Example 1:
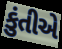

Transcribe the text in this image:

કુંતીએ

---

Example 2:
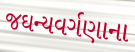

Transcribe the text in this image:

જઘન્યવર્ગણાના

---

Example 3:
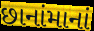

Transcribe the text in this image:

છાનાંમાનાં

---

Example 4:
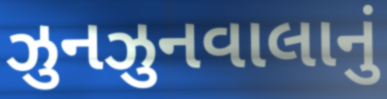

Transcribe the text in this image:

ઝુનઝુનવાલાનું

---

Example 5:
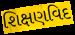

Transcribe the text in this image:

શિક્ષણવિદ